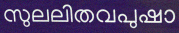
സുലലിതവപുഷാ